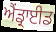
ਐਂਡ੍ਰਾਈਡ